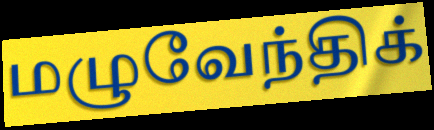
மழுவேந்திக்